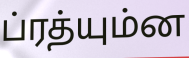
ப்ரத்யும்ன